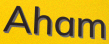
Aham